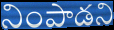
నింపాడని